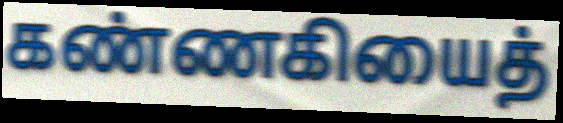
கண்ணகியைத்